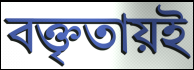
বক্তৃতায়ই